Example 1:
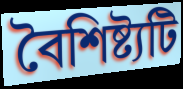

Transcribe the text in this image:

বৈশিষ্ট্যটি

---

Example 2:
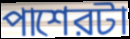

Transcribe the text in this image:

পাশেরটা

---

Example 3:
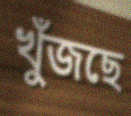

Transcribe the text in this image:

খুঁজছে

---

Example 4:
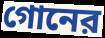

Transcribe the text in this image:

গোনের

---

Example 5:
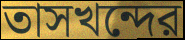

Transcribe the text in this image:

তাসখন্দের